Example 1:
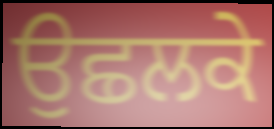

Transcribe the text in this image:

ਉਛਲਕੇ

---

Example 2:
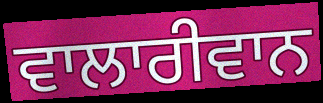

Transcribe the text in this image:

ਵਾਲਾਰੀਵਾਨ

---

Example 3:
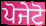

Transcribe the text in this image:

ਪੋਜੇਟੋ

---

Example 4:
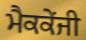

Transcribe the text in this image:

ਮੈਕਕੇਂਜੀ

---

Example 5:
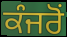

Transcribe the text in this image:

ਕੰਜਰੋਂ